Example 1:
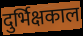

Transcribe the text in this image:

दुर्भिक्षकाल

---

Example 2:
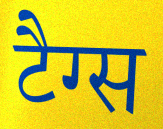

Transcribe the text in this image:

टैग्स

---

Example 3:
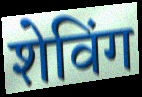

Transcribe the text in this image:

शेविंग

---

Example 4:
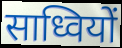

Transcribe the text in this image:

साध्वियों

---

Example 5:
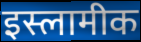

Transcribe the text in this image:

इस्लामीक